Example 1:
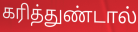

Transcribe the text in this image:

கரித்துண்டால்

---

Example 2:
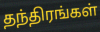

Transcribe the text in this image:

தந்திரங்கள்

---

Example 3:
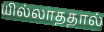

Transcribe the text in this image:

யில்லாததால்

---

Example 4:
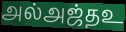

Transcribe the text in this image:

அல்அஜ்தஉ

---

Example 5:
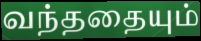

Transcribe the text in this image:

வந்ததையும்